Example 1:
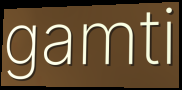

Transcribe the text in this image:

gamti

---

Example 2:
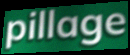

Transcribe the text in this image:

pillage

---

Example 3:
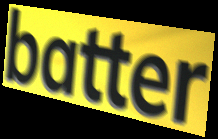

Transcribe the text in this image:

batter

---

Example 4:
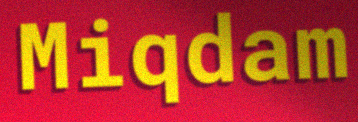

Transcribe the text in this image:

Miqdam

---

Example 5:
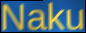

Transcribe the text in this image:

Naku